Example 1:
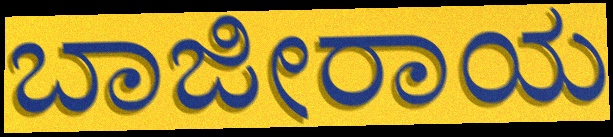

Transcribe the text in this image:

ಬಾಜೀರಾಯ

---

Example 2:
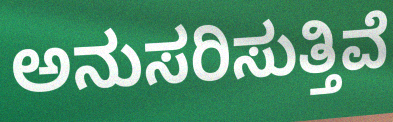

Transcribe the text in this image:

ಅನುಸರಿಸುತ್ತಿವೆ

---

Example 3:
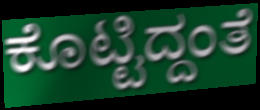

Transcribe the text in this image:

ಕೊಟ್ಟಿದ್ದಂತೆ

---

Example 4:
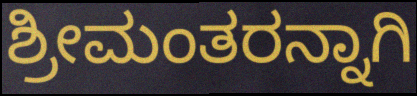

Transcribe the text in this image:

ಶ್ರೀಮಂತರನ್ನಾಗಿ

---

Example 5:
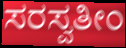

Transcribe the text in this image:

ಸರಸ್ವತೀಂ